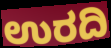
ಉರದಿ